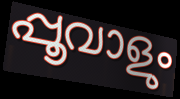
പ്പൂവാളും